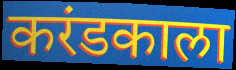
करंडकाला